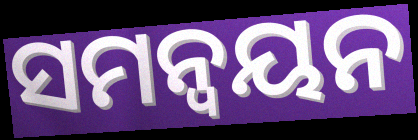
ସମନ୍ୱୟନ